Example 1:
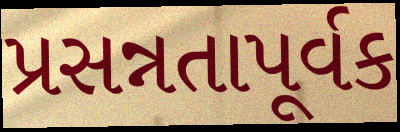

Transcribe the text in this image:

પ્રસન્નતાપૂર્વક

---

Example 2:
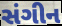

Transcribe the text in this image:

સંગીન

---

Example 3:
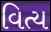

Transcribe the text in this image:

વિત્ય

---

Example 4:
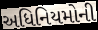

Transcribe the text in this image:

અધિનિયમોની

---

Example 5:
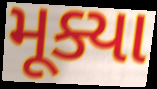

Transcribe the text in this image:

મૂક્યા